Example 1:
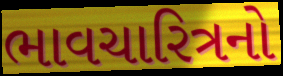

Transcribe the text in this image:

ભાવચારિત્રનો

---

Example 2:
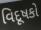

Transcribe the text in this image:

વિદૂષકો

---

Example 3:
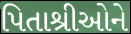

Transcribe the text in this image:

પિતાશ્રીઓને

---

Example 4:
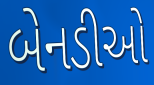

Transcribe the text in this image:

બેનડીઓ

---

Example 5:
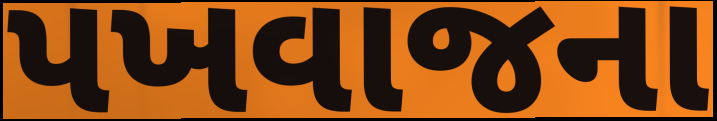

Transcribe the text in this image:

પખવાજના